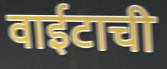
वाईटाची